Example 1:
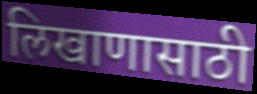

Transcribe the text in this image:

लिखाणासाठी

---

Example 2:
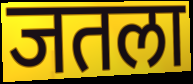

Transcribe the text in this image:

जतला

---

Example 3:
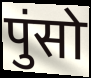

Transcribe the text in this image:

पुंसो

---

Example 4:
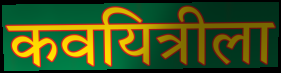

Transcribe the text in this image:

कवयित्रीला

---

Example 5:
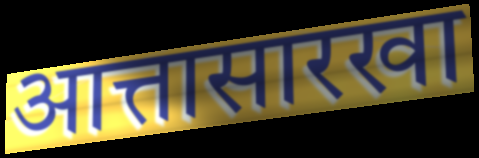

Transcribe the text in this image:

आत्तासारखा